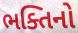
ભક્તિનો